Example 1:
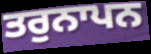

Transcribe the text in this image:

ਤਰੁਨਾਪਨ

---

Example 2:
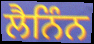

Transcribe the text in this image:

ਲੈਨਿੰਨ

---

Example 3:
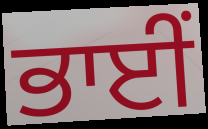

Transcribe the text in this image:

ਭਾਈੰ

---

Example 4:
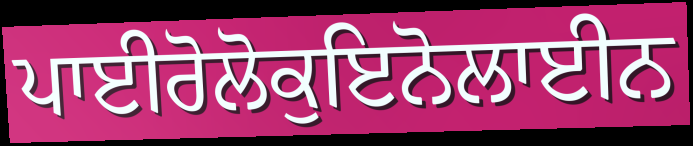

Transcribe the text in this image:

ਪਾਈਰੋਲੋਕੁਇਨੋਲਾਈਨ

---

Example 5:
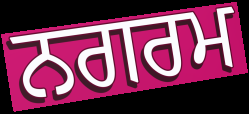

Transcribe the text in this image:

ਨਗਰਮ